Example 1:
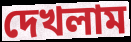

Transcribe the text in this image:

দেখলাম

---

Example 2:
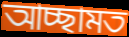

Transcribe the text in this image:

আচ্ছামত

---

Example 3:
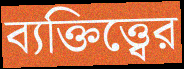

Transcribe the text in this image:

ব্যক্তিত্ত্বের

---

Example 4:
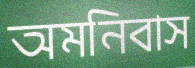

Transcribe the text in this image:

অমনিবাস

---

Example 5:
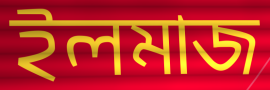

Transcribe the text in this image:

ইলমাজ